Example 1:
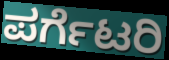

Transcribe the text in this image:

ಪರ್ಗೆಟರಿ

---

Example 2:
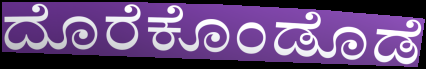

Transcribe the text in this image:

ದೊರೆಕೊಂಡೊಡೆ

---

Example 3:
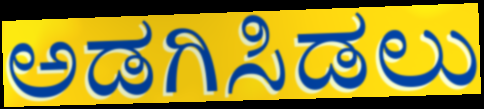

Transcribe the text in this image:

ಅಡಗಿಸಿಡಲು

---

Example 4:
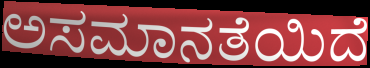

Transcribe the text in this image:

ಅಸಮಾನತೆಯಿದೆ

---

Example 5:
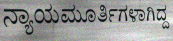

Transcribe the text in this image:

ನ್ಯಾಯಮೂರ್ತಿಗಳಾಗಿದ್ದ